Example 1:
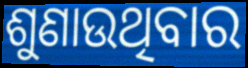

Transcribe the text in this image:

ଶୁଣାଉଥିବାର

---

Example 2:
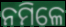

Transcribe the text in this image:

ନମିଳେ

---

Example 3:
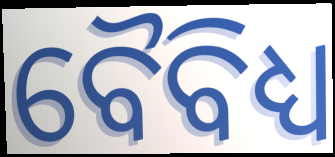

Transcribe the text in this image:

ବୈବିଧ୍ୟ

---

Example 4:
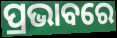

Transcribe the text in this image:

ପ୍ରଭାବରେ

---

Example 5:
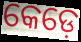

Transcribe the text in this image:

କେଡ଼େ